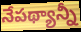
నేపథ్యాన్నీ